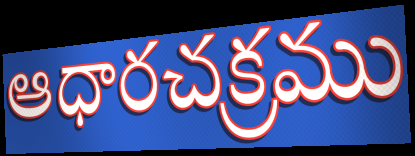
ఆధారచక్రము